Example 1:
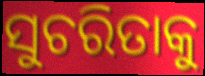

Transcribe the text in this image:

ସୁଚରିତାକୁ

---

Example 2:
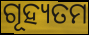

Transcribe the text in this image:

ଗୂହ୍ୟତମ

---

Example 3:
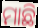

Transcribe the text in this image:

ମାଛି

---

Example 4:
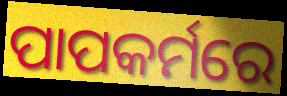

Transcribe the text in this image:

ପାପକର୍ମରେ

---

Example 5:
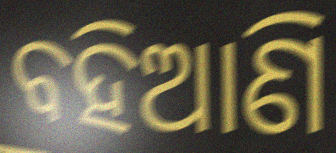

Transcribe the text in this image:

ବହିଆଣି